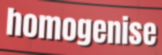
homogenise